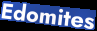
Edomites